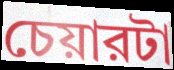
চেয়ারটা